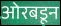
ओरबडून